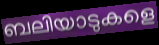
ബലിയാടുകളെ